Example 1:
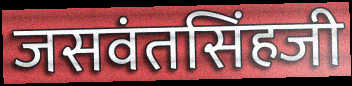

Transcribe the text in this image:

जसवंतसिंहजी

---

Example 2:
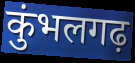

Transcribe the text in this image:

कुंभलगढ़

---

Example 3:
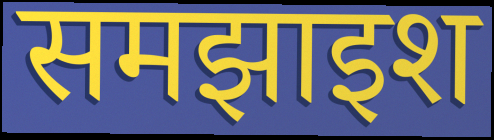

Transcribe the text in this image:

समझाइश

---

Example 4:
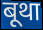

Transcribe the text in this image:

बूथा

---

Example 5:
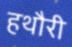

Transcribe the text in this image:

हथौरी